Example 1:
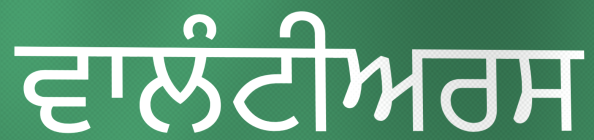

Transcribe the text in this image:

ਵਾਲੰਟੀਅਰਸ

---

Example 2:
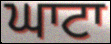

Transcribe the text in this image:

ਘਾਟਾ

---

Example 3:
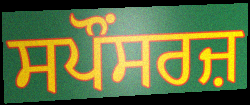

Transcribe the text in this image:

ਸਪੌਂਸਰਜ਼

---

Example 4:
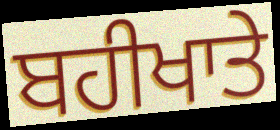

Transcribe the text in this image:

ਬਹੀਖਾਤੇ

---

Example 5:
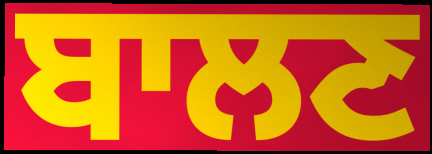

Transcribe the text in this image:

ਬਾਲਣ